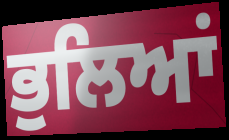
ਭੁਲਿਆਂ